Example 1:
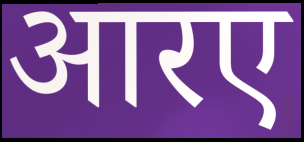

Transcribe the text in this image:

आरए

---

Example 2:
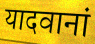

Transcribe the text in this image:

यादवानां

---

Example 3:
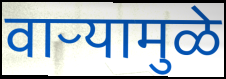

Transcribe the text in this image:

वाऱ्यामुळे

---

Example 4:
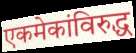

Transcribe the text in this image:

एकमेकांविरुद्ध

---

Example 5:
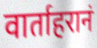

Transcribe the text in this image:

वार्ताहरानं